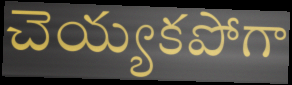
చెయ్యకపోగా